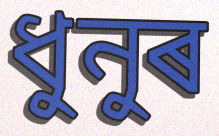
ধুনুৰ